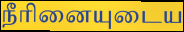
நீரினையுடைய